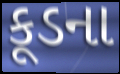
કૂડના